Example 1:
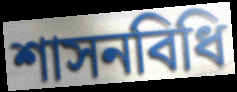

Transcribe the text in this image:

শাসনবিধি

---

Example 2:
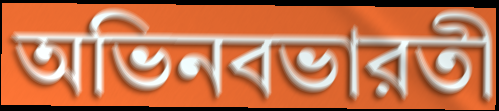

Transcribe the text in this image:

অভিনবভারতী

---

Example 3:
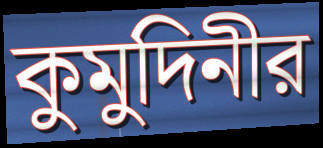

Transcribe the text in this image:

কুমুদিনীর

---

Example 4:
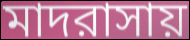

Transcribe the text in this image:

মাদরাসায়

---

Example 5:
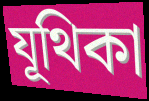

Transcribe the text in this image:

যূথিকা